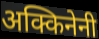
अक्किनेनी